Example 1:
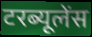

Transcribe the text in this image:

टरब्यूलेंस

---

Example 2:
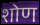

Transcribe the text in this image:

शोण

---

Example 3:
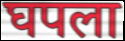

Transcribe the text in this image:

घपला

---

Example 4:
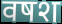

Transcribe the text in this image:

वषश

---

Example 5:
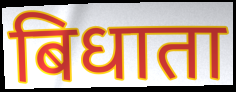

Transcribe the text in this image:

बिधाता